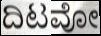
ದಿಟವೋ